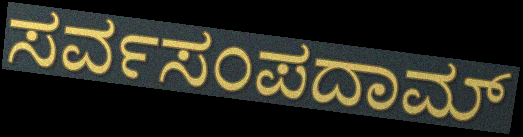
ಸರ್ವಸಂಪದಾಮ್